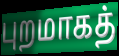
புறமாகத்